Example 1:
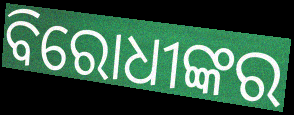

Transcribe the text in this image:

ବିରୋଧୀଙ୍କର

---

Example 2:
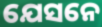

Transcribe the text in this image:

ଯେସନେ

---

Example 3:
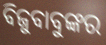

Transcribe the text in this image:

ବିଜୁବାବୁଙ୍କର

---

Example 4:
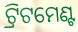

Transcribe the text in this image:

ଟ୍ରିଟମେଣ୍ଟ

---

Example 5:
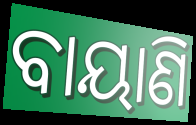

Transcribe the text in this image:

ବାୟାଣି